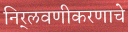
निर्लवणीकरणाचे